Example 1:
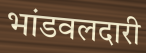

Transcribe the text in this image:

भांडवलदारी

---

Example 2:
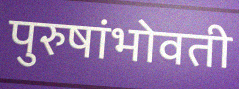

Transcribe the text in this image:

पुरुषांभोवती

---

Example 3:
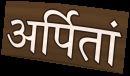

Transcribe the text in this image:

अर्पितां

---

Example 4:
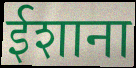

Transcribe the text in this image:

ईशाना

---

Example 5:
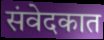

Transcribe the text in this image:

संवेदकात